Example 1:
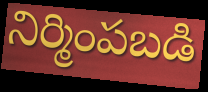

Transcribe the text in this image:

నిర్మింపబడి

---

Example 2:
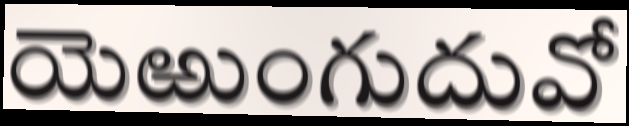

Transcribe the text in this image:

యెఱుంగుదువో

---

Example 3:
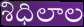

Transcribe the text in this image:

శిధిలాల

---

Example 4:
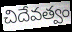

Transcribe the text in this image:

చిదేవత్వం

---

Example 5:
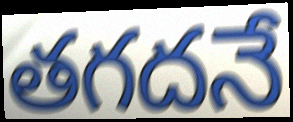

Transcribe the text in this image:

తగదనే